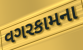
વગરકામના